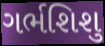
ગર્ભશિશુ